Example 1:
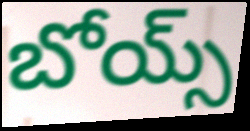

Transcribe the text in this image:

బోయ్స్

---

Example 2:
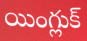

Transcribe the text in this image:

యింగ్లుక్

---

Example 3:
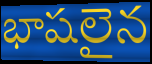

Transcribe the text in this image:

భాషలైన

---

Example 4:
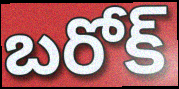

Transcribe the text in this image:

బరోక్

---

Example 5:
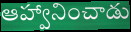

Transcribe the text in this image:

ఆహ్వానించాడు